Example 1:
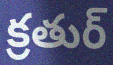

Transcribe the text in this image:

క్రతుర్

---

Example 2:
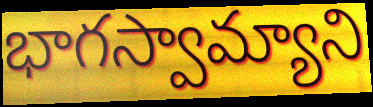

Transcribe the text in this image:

భాగస్వామ్యాని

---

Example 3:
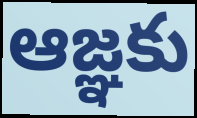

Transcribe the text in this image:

ఆజ్ఞకు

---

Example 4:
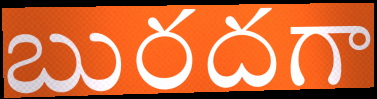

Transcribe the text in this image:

బురదగా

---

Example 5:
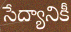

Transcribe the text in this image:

సేద్యానికీ